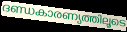
ദണ്ഡകാരണ്യത്തിലൂടെ